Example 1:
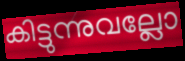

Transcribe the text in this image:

കിട്ടുന്നുവല്ലോ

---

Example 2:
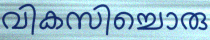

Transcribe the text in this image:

വികസിച്ചൊരു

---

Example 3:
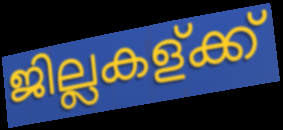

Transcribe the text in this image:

ജില്ലകള്ക്ക്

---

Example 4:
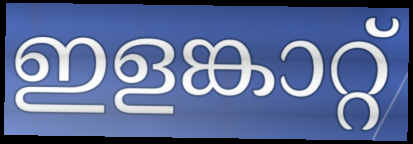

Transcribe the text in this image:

ഇളങ്കാറ്റ്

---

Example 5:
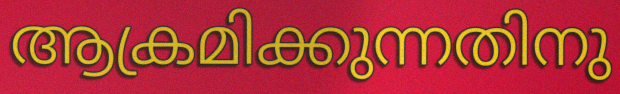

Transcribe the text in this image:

ആക്രമിക്കുന്നതിനു